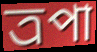
ত্রপা